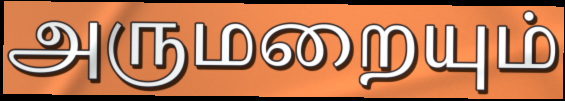
அருமறையும்